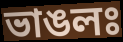
ভাঙলঃ